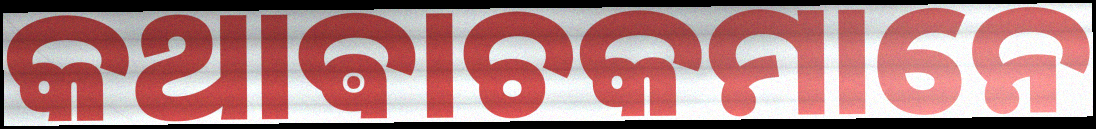
କଥାଵାଚକମାନେ